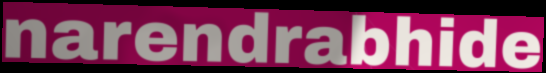
narendrabhide